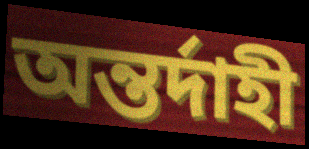
অন্তর্দাহী